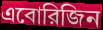
এবোরিজিন